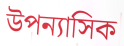
উপন্যাসিক